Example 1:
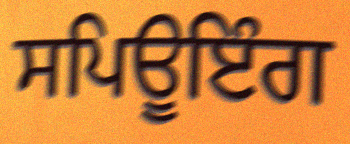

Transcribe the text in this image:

ਸਪਿਊਇੰਗ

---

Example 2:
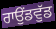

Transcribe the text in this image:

ਰਾਉਂਡਵੁੱਡ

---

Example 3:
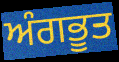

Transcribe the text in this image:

ਅੰਗਭੂਤ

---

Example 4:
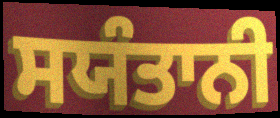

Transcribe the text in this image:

ਸਯੰਤਾਨੀ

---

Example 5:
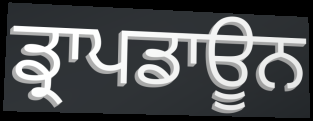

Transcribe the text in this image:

ਡ੍ਰਾਪਡਾਊਨ